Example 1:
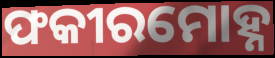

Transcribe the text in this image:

ଫକୀରମୋହ୍ନ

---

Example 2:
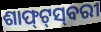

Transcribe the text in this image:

ଶାଫ୍‍ଟ୍‍ସ୍‍ବରୀ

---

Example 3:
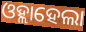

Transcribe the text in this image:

ଓହ୍ଲାହେଲା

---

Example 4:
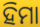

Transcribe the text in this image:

ହିମା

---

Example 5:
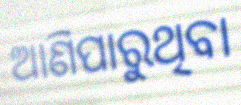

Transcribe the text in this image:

ଆଣିପାରୁଥିବା